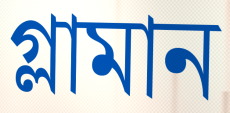
গ্লামান